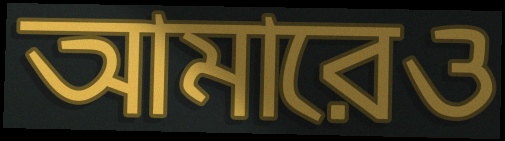
আমারেও